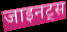
जाइनट्स